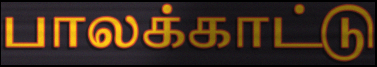
பாலக்காட்டு